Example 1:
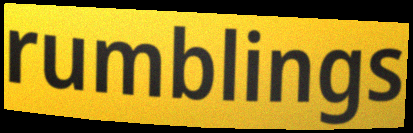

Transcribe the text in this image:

rumblings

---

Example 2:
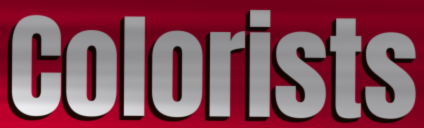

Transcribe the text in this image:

Colorists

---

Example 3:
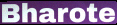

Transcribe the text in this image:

Bharote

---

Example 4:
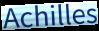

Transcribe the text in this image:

Achilles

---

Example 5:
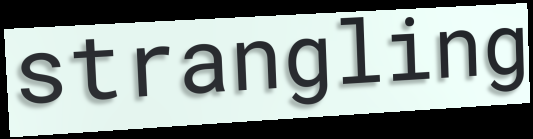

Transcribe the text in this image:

strangling